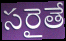
సరైతే